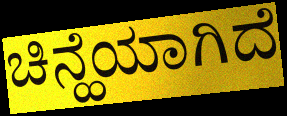
ಚಿನ್ಹೆಯಾಗಿದೆ